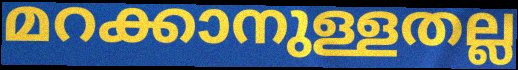
മറക്കാനുള്ളതല്ല